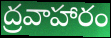
ద్రవాహారం